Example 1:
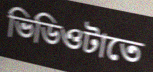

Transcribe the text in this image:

ভিডিওটাতে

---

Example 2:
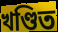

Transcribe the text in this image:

খণ্ডিত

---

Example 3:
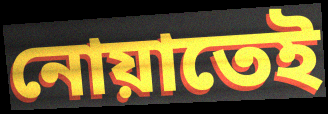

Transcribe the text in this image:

নোয়াতেই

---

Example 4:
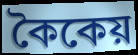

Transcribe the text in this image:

কৈকেয়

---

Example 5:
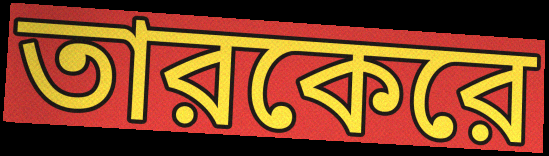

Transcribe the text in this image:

তারকেরে